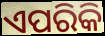
ଏପରିକି